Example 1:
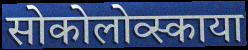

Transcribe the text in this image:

सोकोलोव्स्काया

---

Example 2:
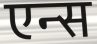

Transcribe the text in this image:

एन्स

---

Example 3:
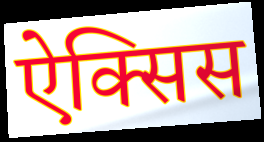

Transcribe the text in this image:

ऐक्सिस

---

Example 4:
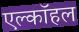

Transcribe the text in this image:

एल्कॉहल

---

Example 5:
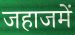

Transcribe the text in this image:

जहाजमें